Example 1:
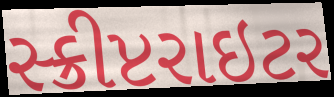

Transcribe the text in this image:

સ્ક્રીપ્ટરાઇટર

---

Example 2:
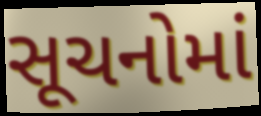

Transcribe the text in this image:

સૂચનોમાં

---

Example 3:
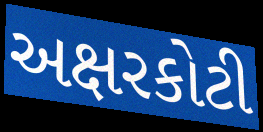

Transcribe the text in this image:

અક્ષરકોટી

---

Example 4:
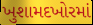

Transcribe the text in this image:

ખુશામદખોરમાં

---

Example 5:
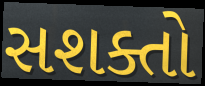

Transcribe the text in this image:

સશક્તો